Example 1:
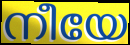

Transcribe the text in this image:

നീയേ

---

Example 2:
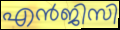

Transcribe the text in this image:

എൻജിസി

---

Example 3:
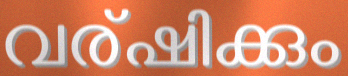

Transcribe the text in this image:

വര്ഷിക്കും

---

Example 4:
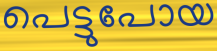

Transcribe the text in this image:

പെട്ടുപോയ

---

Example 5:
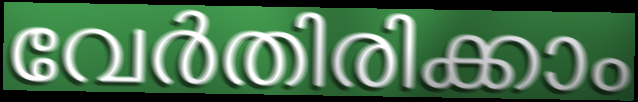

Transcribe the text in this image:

വേർതിരിക്കാം